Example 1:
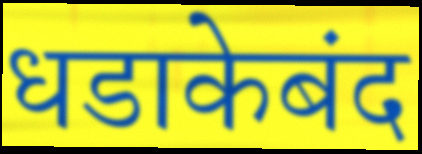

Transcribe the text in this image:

धडाकेबंद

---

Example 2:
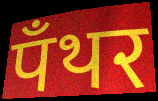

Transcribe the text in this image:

पँथर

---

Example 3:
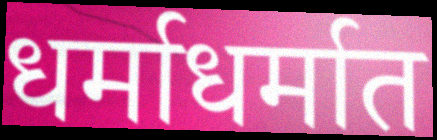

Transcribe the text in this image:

धर्माधर्मात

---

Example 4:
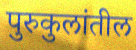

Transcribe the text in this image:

पुरुकुलांतील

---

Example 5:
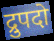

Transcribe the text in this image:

द्रुपदो